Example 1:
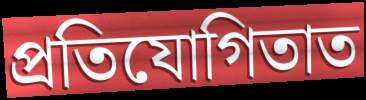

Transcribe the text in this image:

প্ৰতিযোগিতাত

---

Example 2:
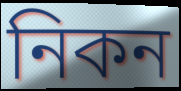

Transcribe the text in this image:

নিকন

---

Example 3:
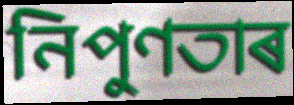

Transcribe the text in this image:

নিপুণতাৰ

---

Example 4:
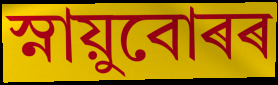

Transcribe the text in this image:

স্নায়ুবোৰৰ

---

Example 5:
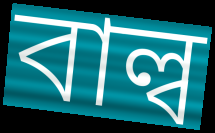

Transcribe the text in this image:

বাল্ব